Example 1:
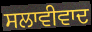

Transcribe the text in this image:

ਸਲਾਵੀਵਾਦ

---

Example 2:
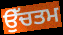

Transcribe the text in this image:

ਉੱਚਤਮ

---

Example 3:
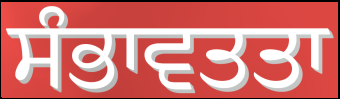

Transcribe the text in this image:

ਸੰਭਾਵਤਤਾ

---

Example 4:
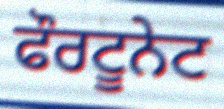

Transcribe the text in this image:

ਫੌਰਟੂਨੇਟ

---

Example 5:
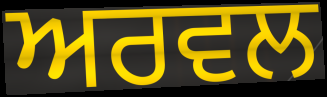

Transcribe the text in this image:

ਅਰਵਲ